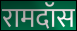
रामदॉस